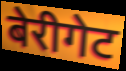
बेरीगेट